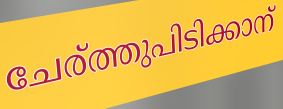
ചേര്ത്തുപിടിക്കാന്